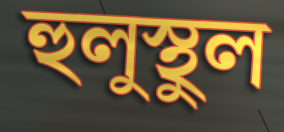
হুলুস্থুল